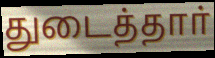
துடைத்தார்